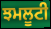
ਝਮਲੂਟੀ